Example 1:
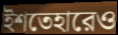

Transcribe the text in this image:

ইশতেহারেও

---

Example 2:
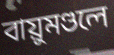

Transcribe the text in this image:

বায়ুমণ্ডলে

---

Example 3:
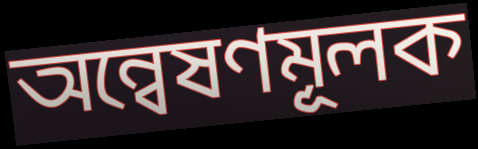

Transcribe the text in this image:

অন্বেষণমূলক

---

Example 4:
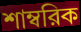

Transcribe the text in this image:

শাম্বরিক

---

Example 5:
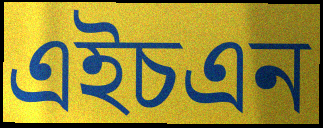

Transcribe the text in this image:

এইচএন